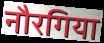
नौरगिया